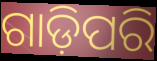
ଗାଡ଼ିପରି